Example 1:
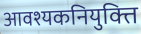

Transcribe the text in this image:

आवश्यकनियुक्ति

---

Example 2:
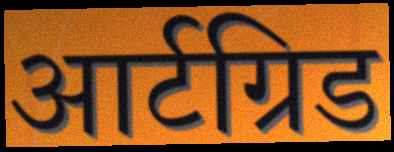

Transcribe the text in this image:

आर्टग्रिड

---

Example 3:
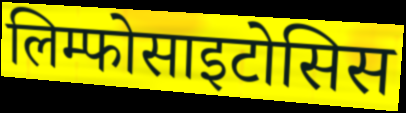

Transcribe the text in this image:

लिम्फोसाइटोसिस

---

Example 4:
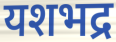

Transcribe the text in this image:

यशभद्र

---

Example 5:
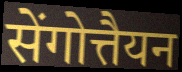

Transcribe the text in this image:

सेंगोत्तैयन